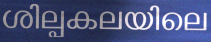
ശില്പകലയിലെ